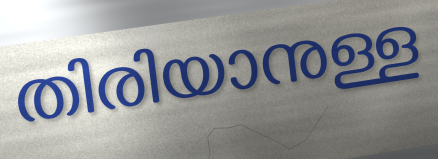
തിരിയാനുള്ള